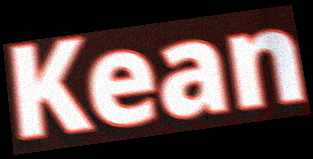
Kean